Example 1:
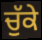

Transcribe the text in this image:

ਚੁੱਕੇ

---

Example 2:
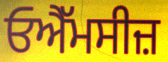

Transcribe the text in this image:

ਓਐੱਮਸੀਜ਼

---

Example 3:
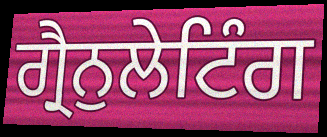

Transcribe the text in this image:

ਗ੍ਰੈਨੁਲੇਟਿੰਗ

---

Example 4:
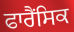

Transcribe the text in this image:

ਫਾਰੈਂਸਿਕ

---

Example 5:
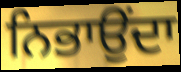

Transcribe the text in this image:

ਨਿਭਾਉਂਦਾ